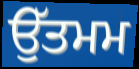
ਉੱਤਮਮ